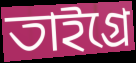
তাইগ্রে